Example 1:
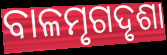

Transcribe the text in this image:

ବାଳମୃଗଦୃଶା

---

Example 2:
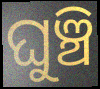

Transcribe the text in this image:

ଘୁଞ୍ଚି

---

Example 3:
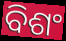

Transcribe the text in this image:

ବିଶଂ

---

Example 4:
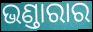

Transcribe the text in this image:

ଭଣ୍ଡାରାର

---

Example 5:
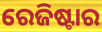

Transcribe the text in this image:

ରେଜିଷ୍ଟାର